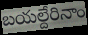
బయల్దేరినాం